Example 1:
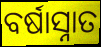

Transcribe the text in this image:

ବର୍ଷାସ୍ନାତ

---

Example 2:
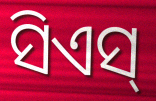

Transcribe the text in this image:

ସିଏସ୍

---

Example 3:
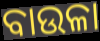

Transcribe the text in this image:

ବାଉଳା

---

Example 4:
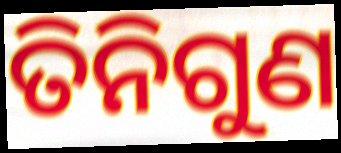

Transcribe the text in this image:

ତିନିଗୁଣ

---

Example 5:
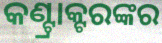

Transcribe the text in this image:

କଣ୍ଟ୍ରାକ୍ଟରଙ୍କର